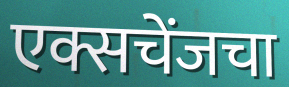
एक्सचेंजचा